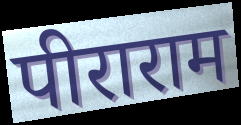
पीराराम